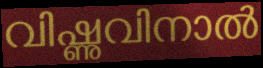
വിഷ്ണുവിനാൽ